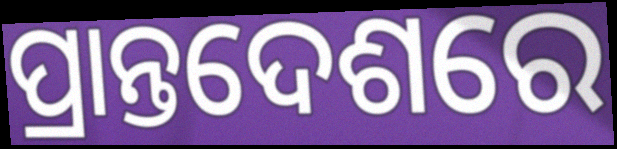
ପ୍ରାନ୍ତଦେଶରେ